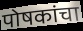
पोषकांचा